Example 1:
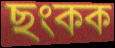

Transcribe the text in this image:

ছংকক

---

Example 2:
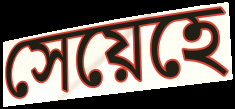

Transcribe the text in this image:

সেয়েহে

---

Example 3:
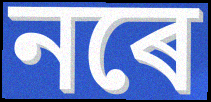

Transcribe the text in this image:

নৰে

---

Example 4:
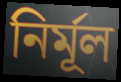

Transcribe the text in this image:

নিৰ্মূল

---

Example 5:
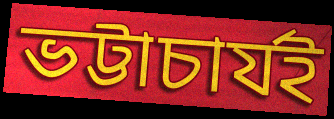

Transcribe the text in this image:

ভট্টাচাৰ্যই